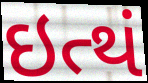
ઇત્થં